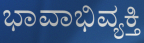
ಭಾವಾಭಿವ್ಯಕ್ತಿ